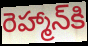
రెహ్మాన్‌కి